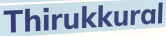
Thirukkural